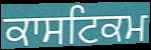
ਕਾਸਟਿਕਮ